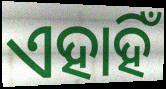
ଏହାହିଁ